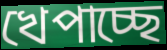
খেপাচ্ছে